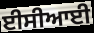
ਈਸੀਆਈ